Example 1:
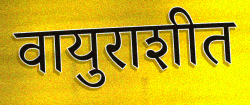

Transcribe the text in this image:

वायुराशीत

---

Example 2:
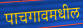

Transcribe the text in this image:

पाचगावमधील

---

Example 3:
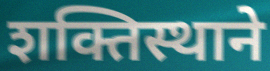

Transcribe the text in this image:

शक्तिस्थाने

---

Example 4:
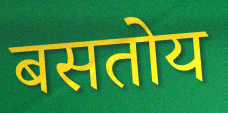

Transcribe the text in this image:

बसतोय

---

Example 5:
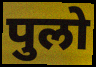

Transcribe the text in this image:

पुलो